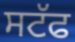
ਸਟੱਫ